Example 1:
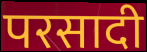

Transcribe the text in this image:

परसादी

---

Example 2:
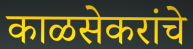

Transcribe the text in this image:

काळसेकरांचे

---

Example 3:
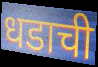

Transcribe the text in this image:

धडाची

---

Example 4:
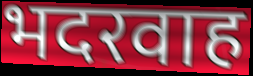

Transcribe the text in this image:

भदरवाह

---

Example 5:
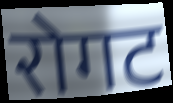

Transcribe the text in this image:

रोगट